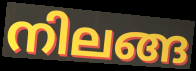
നിലങ്ങ